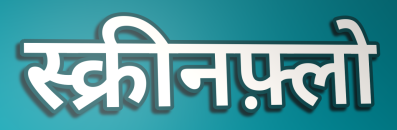
स्क्रीनफ़्लो